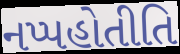
નપ્પહોતીતિ